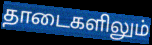
தாடைகளிலும்